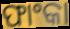
ଫାଂକା